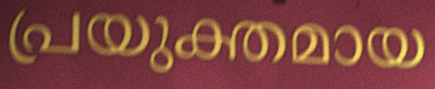
പ്രയുക്തമായ